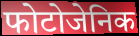
फोटोजेनिक